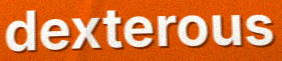
dexterous